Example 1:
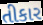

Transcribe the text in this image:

તીકાર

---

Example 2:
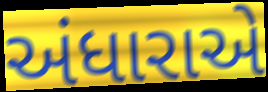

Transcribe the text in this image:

અંધારાએ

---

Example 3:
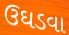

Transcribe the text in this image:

ઉઘડવા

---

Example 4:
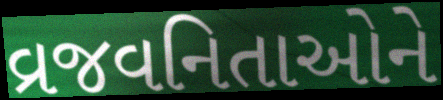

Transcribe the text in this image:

વ્રજવનિતાઓને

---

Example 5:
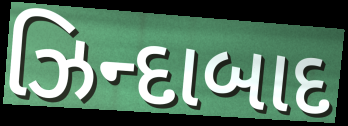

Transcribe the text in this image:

ઝિન્દાબાદ